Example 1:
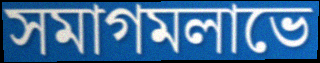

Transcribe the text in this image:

সমাগমলাভে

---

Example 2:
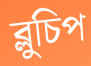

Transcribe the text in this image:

ব্লুচিপ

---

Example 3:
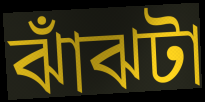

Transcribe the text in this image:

ঝাঁঝটা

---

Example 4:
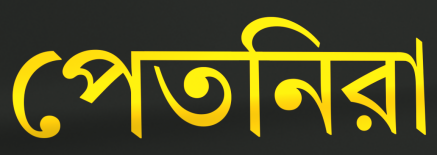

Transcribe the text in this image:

পেতনিরা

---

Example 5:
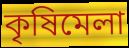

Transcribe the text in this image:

কৃষিমেলা